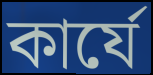
কার্যে